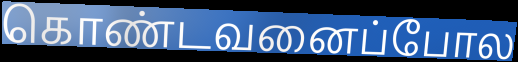
கொண்டவனைப்போல